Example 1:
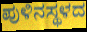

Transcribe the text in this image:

ಪುಳಿನಸ್ಥಳದ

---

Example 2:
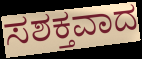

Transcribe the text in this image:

ಸಶಕ್ತವಾದ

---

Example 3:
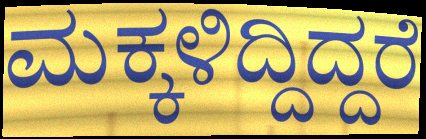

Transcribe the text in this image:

ಮಕ್ಕಳಿದ್ದಿದ್ದರೆ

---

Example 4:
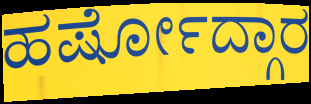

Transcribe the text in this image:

ಹರ್ಷೋದ್ಗಾರ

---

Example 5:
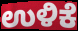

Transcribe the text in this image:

ಉಳಿಕೆ